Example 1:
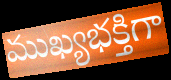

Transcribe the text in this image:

ముఖ్యభక్తిగా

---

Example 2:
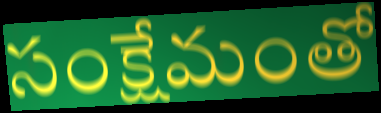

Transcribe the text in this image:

సంక్షేమంతో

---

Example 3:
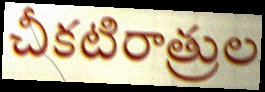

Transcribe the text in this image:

చీకటిరాత్రుల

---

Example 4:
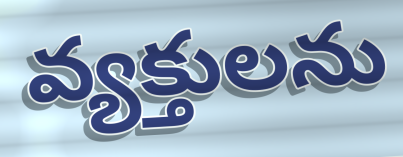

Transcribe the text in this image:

వ్యక్తులను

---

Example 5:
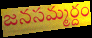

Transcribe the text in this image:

జనసమ్మర్దం